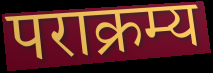
पराक्रम्य